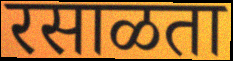
रसाळता